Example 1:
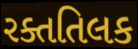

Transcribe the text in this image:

રક્તતિલક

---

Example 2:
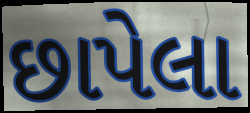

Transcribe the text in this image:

છાપેલા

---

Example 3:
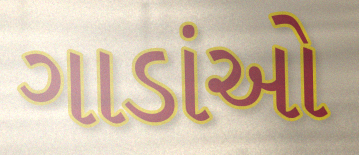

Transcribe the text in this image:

ગાડાંઓ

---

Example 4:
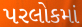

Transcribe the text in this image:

પરલોકમાં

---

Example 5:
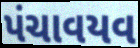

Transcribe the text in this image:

પંચાવયવ